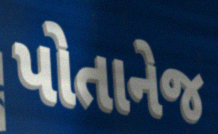
પોતાનેજ